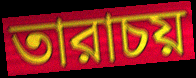
তারাচয়